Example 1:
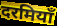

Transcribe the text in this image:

दरमियाँ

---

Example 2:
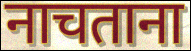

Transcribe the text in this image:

नाचताना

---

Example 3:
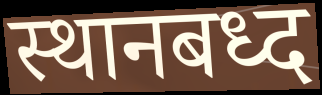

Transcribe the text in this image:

स्थानबध्द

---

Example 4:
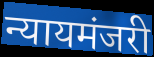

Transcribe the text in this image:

न्यायमंजरी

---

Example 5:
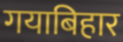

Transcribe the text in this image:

गयाबिहार